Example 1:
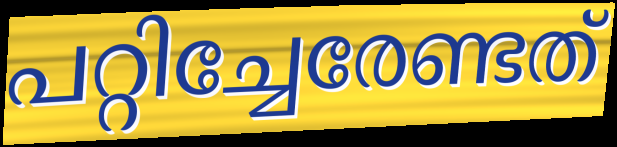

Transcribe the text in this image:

പറ്റിച്ചേരേണ്ടത്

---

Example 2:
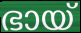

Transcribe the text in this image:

ഭായ്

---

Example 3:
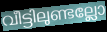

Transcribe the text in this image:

വീട്ടിലുണ്ടല്ലോ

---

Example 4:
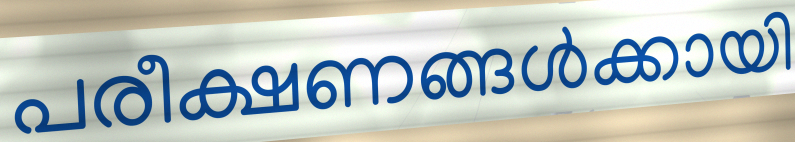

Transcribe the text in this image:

പരീക്ഷണങ്ങൾക്കായി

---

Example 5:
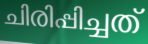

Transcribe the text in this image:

ചിരിപ്പിച്ചത്